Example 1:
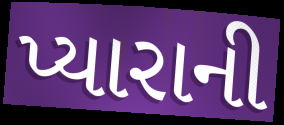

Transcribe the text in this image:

પ્યારાની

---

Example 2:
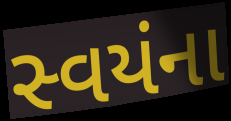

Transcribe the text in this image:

સ્વયંના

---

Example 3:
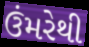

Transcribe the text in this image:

ઉંમરેથી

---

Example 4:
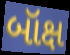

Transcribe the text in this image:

બૉક્ષ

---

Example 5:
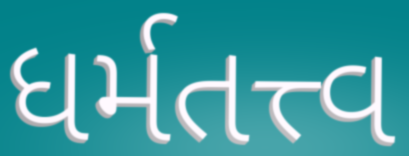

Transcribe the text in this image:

ધર્મતત્ત્વ